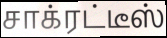
சாக்ரட்டீஸ்